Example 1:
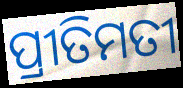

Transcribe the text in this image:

ପ୍ରୀତିମତୀ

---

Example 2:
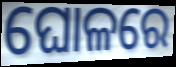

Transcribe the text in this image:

ଘୋଳରେ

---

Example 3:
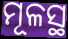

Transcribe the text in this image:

ମୂଳସ୍ଥ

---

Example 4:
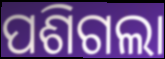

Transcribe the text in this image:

ପଶିଗଲା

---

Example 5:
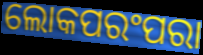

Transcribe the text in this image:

ଲୋକପରଂପରା